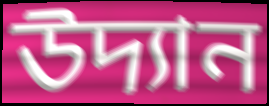
উদ্যান